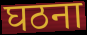
घठना